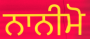
ਨਾਨੀਮੋ